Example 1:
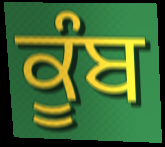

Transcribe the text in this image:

ਕੂੰਬ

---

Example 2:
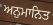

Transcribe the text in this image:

ਅਨੁਮਾਨਿਤ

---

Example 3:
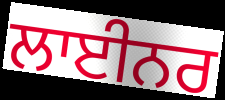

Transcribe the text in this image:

ਲਾਈਨਰ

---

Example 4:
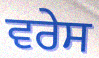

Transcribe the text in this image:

ਵਰੇਸ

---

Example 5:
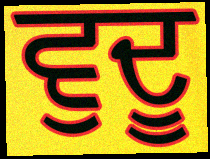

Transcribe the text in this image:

ਵੁਦੂ